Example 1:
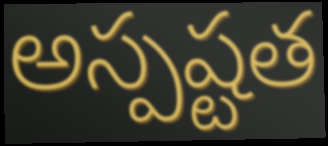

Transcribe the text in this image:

అస్పష్టత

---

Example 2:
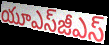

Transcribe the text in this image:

యూఎస్‌జీఎస్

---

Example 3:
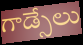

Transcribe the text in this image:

గాడ్సేలు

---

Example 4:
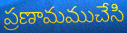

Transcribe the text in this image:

ప్రణామముచేసి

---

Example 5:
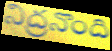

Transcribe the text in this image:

నిద్రనొంది